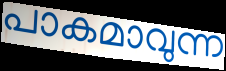
പാകമാവുന്ന